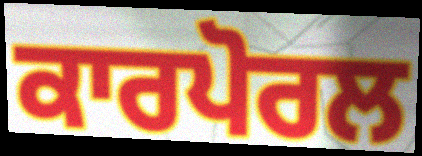
ਕਾਰਪੋਰਲ